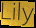
Lily